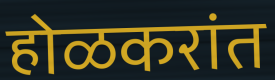
होळकरांत